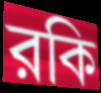
রকি